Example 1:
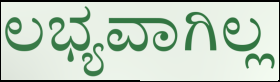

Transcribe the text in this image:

ಲಭ್ಯವಾಗಿಲ್ಲ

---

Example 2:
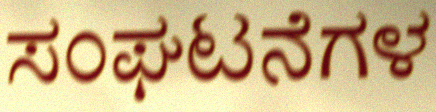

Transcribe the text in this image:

ಸಂಘಟನೆಗಳ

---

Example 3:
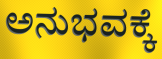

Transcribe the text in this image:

ಅನುಭವಕ್ಕೆ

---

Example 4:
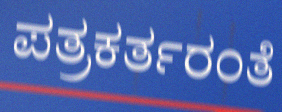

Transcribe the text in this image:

ಪತ್ರಕರ್ತರಂತೆ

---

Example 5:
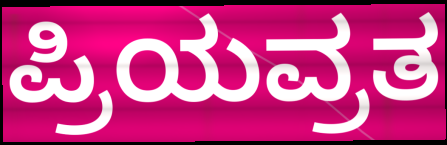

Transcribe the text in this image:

ಪ್ರಿಯವ್ರತ